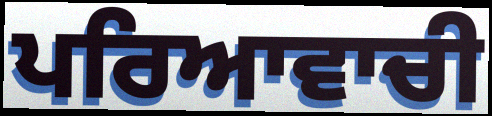
ਪਰਿਆਵਾਚੀ